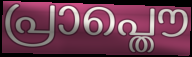
പ്രാപ്തൌ